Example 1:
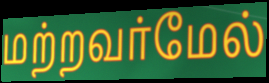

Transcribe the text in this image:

மற்றவர்மேல்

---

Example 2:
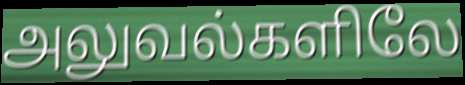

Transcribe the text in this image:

அலுவல்களிலே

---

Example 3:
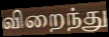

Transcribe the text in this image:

விறைந்து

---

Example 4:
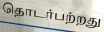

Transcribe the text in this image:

தொடர்பற்றது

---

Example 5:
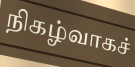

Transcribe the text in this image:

நிகழ்வாகச்